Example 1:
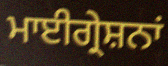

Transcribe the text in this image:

ਮਾਈਗ੍ਰੇਸ਼ਨਾਂ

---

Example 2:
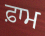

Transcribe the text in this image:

ਫ਼ਾਮ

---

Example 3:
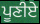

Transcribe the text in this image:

ਪੂਣੀਏ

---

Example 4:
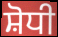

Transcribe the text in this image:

ਸ਼ੋਧੀ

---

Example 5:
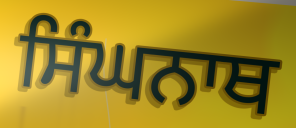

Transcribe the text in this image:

ਸਿੰਘਨਾਥ